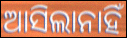
ଆସିଲାନାହିଁ